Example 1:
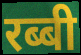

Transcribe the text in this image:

रब्बी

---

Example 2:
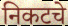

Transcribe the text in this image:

निकटचे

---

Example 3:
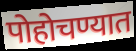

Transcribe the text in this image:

पोहोचण्यात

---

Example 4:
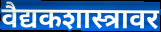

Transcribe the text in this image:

वैद्यकशास्त्रावर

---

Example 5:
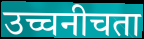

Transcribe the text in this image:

उच्चनीचता